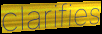
clarifies